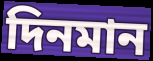
দিনমান